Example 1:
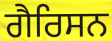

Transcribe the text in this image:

ਗੈਰਿਸਨ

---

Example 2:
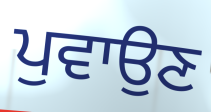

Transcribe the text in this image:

ਪੁਵਾਉਣ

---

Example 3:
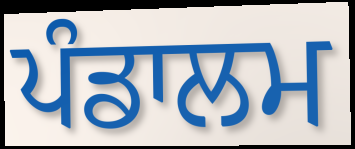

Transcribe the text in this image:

ਪੰਡਾਲਮ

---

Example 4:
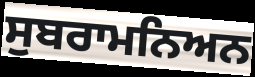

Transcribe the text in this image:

ਸੁਬਰਾਮਨਿਅਨ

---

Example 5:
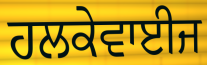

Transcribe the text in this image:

ਹਲਕੇਵਾਈਜ